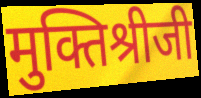
मुक्तिश्रीजी